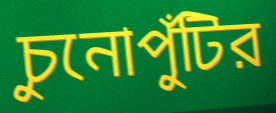
চুনোপুঁটির